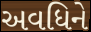
અવધિને